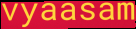
vyaasam